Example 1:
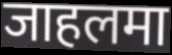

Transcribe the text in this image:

जाहलमा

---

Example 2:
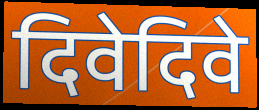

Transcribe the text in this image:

दिवेदिवे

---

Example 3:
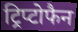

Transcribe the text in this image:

ट्रिप्टोफैन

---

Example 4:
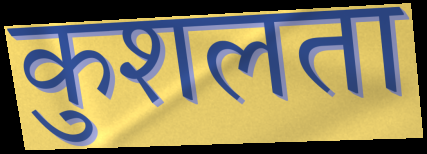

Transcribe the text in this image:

कुशलता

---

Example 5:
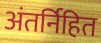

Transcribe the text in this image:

अंतर्निहित